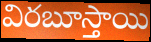
విరబూస్తాయి